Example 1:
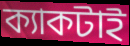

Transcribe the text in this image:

ক্যাকটাই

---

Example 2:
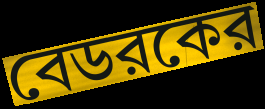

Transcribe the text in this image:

বেডরকের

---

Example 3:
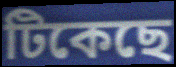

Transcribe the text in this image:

টিকেছে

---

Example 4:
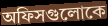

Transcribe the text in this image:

অফিসগুলোকে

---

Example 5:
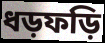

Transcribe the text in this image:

ধড়ফড়ি